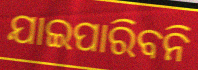
ଯାଇପାରିବନି